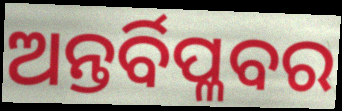
ଅନ୍ତର୍ବିପ୍ଳବର